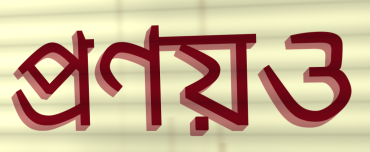
প্রণয়ও